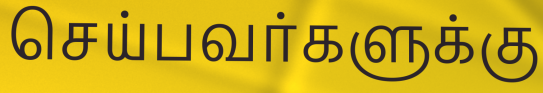
செய்பவர்களுக்கு